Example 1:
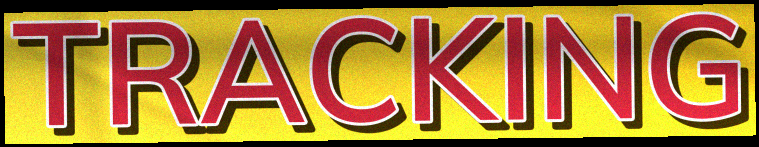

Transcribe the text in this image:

TRACKING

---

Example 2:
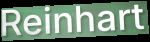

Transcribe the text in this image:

Reinhart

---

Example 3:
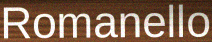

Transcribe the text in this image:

Romanello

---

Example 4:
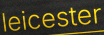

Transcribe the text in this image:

leicester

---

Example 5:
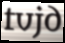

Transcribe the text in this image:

tujd